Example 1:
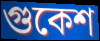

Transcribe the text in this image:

গুকেশ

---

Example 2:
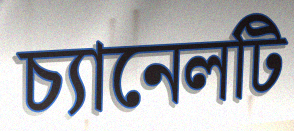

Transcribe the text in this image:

চ্যানেলটি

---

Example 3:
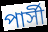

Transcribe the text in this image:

পার্সী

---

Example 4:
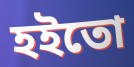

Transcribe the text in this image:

হইতো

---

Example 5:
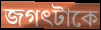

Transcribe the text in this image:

জগৎটাকে